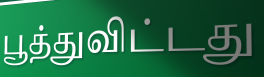
பூத்துவிட்டது